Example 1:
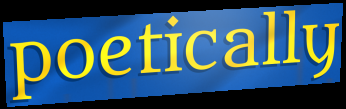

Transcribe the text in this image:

poetically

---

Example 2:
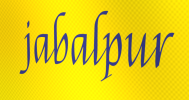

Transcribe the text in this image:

jabalpur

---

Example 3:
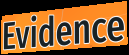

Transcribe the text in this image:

Evidence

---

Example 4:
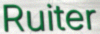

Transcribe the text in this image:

Ruiter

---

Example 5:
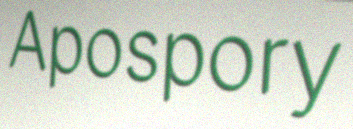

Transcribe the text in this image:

Apospory